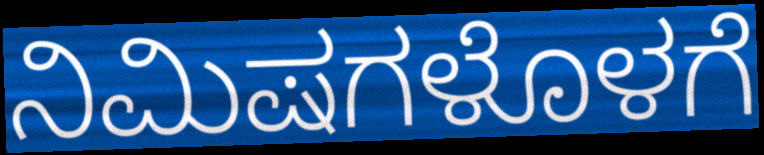
ನಿಮಿಷಗಳೊಳಗೆ